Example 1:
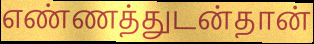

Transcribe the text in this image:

எண்ணத்துடன்தான்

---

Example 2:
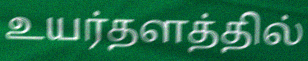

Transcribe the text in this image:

உயர்தளத்தில்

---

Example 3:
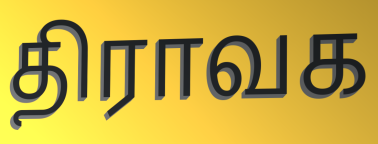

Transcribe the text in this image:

திராவக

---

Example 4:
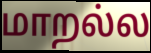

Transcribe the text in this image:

மாறல்ல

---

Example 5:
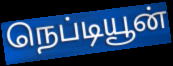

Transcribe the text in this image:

நெப்டியூன்